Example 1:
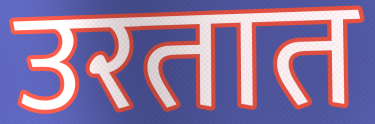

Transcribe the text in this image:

उरतात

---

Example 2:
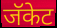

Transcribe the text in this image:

जॅकेट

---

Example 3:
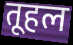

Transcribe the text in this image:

तूहल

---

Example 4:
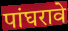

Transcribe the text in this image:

पांघरावे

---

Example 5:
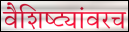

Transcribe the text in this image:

वैशिष्ट्यांवरच